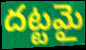
దట్టమై